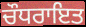
ਚੌਧਰਾਇਤ